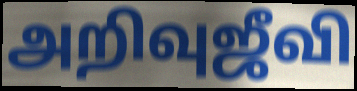
அறிவுஜீவி